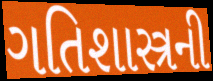
ગતિશાસ્ત્રની